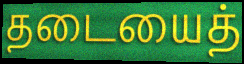
தடையைத்